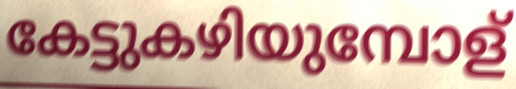
കേട്ടുകഴിയുമ്പോള്